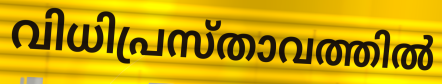
വിധിപ്രസ്താവത്തിൽ